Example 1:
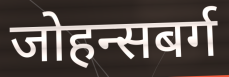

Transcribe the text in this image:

जोहन्सबर्ग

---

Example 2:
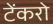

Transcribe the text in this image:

टेंकरो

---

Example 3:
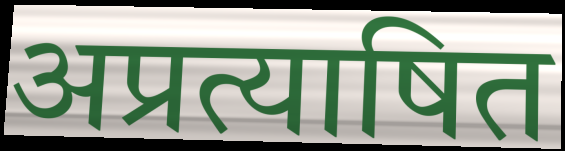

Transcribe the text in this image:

अप्रत्याषित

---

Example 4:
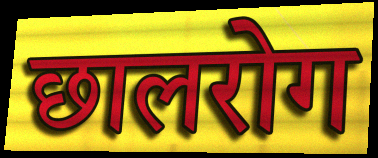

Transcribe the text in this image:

छालरोग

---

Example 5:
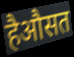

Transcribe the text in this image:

हैऔसत